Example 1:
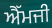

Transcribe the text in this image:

ਐੱਮਜੀ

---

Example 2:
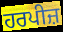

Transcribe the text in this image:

ਹਰਪੀਜ਼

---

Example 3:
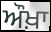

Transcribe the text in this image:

ਔਖ਼ਾ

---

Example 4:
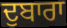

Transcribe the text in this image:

ਦੁਬਾਰਾ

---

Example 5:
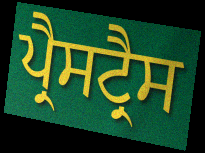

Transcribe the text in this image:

ਪ੍ਰੈਸਟ੍ਰੈਸ